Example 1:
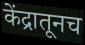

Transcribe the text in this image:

केंद्रातूनच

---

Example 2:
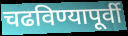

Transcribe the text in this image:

चढविण्यापूर्वी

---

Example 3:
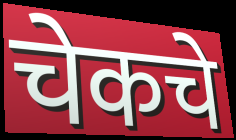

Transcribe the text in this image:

चेकचे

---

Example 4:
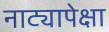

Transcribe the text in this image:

नाट्यापेक्षा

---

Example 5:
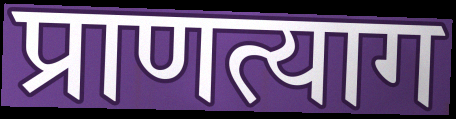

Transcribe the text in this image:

प्राणत्याग